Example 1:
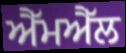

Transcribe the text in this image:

ਐੱਮਐੱਲ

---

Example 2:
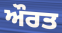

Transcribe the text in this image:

ਔਰਤ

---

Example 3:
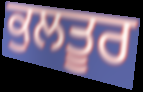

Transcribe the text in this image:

ਕੁਲਤੂਰ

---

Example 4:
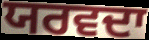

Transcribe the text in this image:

ਯਰਵਦਾ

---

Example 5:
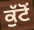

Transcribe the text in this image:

ਕੁੱਟੋਂ